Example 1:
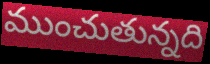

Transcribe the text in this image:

ముంచుతున్నది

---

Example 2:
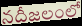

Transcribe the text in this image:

నదీజలంలో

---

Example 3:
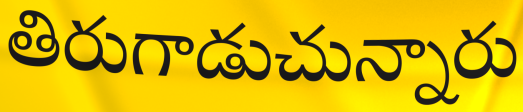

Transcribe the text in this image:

తిరుగాడుచున్నారు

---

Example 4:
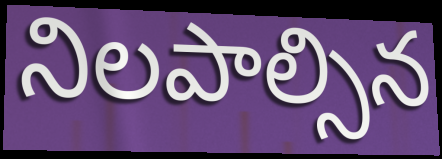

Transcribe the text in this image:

నిలపాల్సిన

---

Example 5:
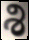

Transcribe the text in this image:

శి